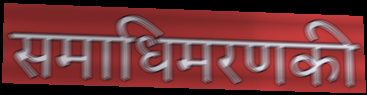
समाधिमरणकी